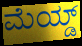
ಮೆಯ್ಡ್